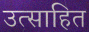
उत्साहित